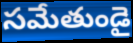
సమేతుండై